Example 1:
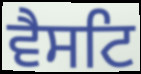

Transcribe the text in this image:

ਵੈਸਟਿ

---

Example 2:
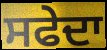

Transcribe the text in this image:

ਸਫੇਦਾ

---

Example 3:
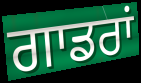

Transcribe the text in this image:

ਗਾਡਰਾਂ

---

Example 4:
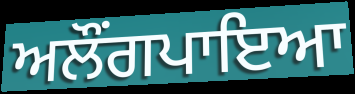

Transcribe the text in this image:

ਅਲੌਂਗਪਾਇਆ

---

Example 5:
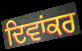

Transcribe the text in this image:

ਦਿਵਾਂਕਰ